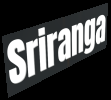
Sriranga